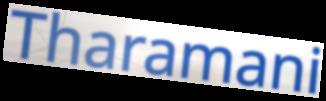
Tharamani